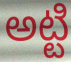
అట్టి